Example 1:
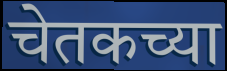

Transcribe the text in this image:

चेतकच्या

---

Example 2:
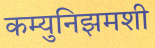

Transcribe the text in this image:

कम्युनिझमशी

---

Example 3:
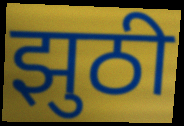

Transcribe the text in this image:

झुठी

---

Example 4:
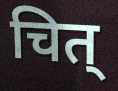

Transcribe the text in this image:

चित्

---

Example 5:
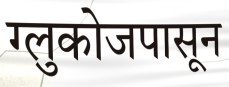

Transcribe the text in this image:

ग्लुकोजपासून